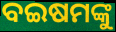
ବଇଷମଙ୍କୁ